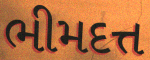
ભીમદત્ત